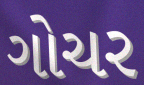
ગોચર